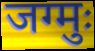
जग्मुः